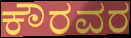
ಕೌರವರ